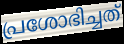
പ്രശോഭിച്ചത്